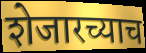
शेजारच्याच